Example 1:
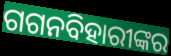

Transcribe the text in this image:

ଗଗନବିହାରୀଙ୍କର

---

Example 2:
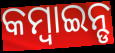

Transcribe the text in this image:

କମ୍ବାଇନ୍ଡ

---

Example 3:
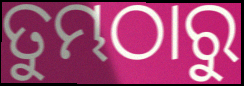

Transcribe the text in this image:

ତୁମ୍ଭଠାରୁ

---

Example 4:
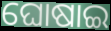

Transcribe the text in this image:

ଘୋଷାଇ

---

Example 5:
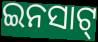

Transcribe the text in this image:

ଇନସାଟ୍